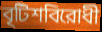
বৃটিশবিরোধী